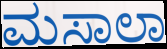
ಮಸಾಲಾ